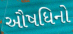
ઔષધિનો